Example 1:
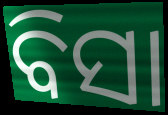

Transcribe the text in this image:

ବିସା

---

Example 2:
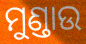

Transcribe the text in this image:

ମୁଣ୍ଡାଉ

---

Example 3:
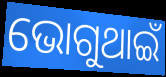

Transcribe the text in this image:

ଭୋଗୁଥାଇଁ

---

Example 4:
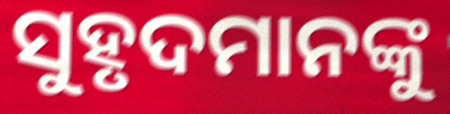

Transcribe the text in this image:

ସୁହୃଦମାନଙ୍କୁ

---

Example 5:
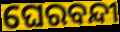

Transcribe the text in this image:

ଘେରବନ୍ଦୀ